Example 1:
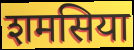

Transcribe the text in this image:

शमसिया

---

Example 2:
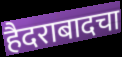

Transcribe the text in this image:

हैदराबादचा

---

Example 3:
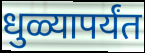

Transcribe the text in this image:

धुळ्यापर्यंत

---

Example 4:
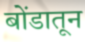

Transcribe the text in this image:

बोंडातून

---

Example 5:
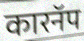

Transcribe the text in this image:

कारनॅप